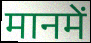
मानमें